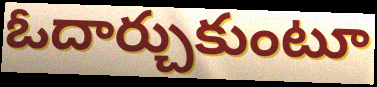
ఓదార్చుకుంటూ